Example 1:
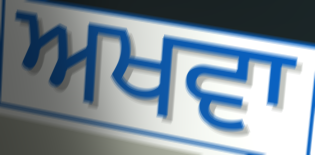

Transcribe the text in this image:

ਅਖਵਾ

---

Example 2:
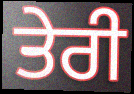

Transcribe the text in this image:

ਤੇਰੀ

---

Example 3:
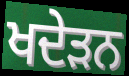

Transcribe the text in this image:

ਖਦੇੜਨ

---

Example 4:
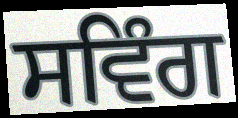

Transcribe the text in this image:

ਸਵਿੰਗ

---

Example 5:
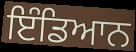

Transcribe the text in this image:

ਇੰਡਿਆਨ